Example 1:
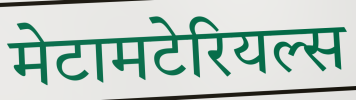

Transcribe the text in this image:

मेटामटेरियल्स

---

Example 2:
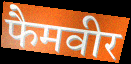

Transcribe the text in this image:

फैमवीर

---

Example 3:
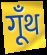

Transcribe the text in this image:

गूँथ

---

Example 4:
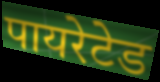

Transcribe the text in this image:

पायरेटेड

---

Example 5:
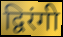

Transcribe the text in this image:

द्विरंगी